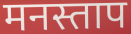
मनस्ताप